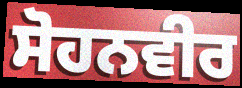
ਸੋਹਨਵੀਰ